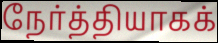
நேர்த்தியாகக்